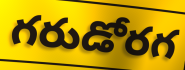
గరుడోరగ